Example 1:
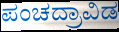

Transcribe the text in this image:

ಪಂಚದ್ರಾವಿಡ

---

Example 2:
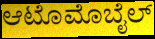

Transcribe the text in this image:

ಆಟೊಮೊಬೈಲ್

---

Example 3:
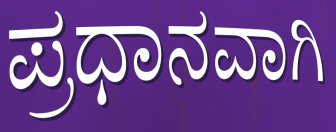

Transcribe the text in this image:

ಪ್ರಧಾನವಾಗಿ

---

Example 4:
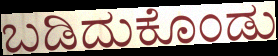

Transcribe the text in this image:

ಬಡಿದುಕೊಂಡು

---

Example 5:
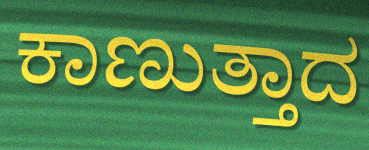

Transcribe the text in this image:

ಕಾಣುತ್ತಾದ